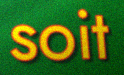
soit